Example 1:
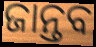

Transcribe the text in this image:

ଜାନ୍ତବ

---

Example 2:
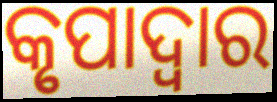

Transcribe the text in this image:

କୃପାଦ୍ଵାର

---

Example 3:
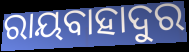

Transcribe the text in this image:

ରାୟବାହାଦୁର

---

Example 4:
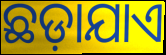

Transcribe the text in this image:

ଛଡ଼ାଯାଏ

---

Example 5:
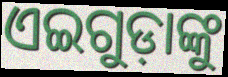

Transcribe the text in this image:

ଏଇଗୁଡ଼ାଙ୍କୁ